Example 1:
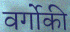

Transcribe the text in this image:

वर्गोकी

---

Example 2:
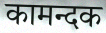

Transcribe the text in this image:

कामन्दक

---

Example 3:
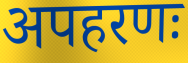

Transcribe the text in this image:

अपहरणः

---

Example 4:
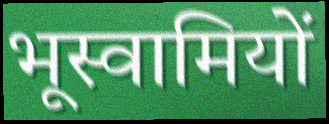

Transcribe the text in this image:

भूस्वामियों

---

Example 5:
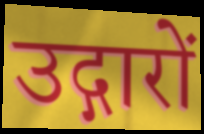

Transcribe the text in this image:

उद्गारों